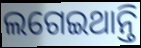
ଲଗେଇଥାନ୍ତି